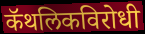
कॅथलिकविरोधी